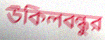
উকিলবন্ধুর